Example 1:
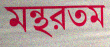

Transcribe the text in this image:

মন্থরতম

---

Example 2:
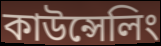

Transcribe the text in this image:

কাউন্সেলিং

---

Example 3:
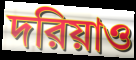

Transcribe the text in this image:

দরিয়াও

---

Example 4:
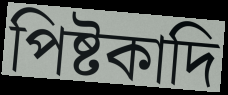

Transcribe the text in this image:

পিষ্টকাদি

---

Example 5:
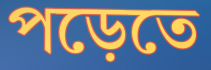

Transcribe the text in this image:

পড়েতে